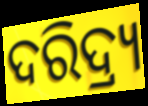
ଦରିଦ୍ର୍ୟ